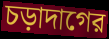
চড়াদাগের